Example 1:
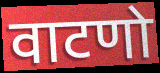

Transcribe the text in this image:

वाटणो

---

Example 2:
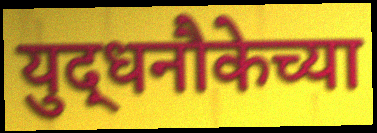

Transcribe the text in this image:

युद्धनौकेच्या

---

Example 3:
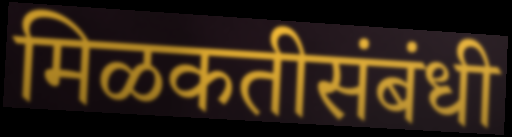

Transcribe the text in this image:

मिळकतीसंबंधी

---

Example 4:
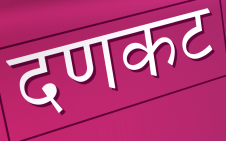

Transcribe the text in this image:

दणकट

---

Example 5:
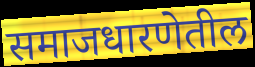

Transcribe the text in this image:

समाजधारणेतील